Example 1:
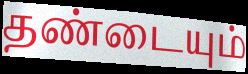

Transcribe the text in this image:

தண்டையும்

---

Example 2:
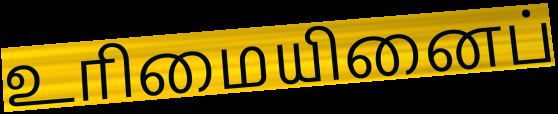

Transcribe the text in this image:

உரிமையினைப்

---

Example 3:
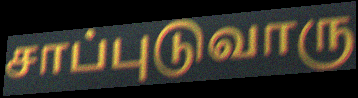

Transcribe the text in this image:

சாப்புடுவாரு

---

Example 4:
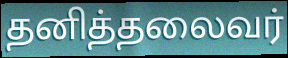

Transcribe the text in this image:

தனித்தலைவர்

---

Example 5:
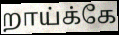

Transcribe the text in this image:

றாய்க்கே